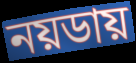
নয়ডায়